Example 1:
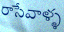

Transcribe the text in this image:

రాసేవాళ్ళ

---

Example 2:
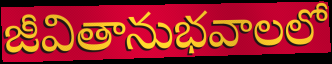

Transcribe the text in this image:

జీవితానుభవాలలో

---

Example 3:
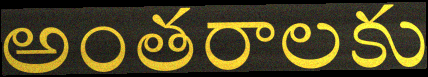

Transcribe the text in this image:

అంతరాలకు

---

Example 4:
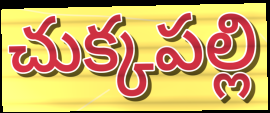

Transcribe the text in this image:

చుక్కపల్లి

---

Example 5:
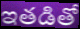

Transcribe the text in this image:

ఇతడితో